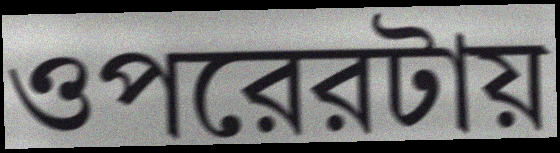
ওপরেরটায়